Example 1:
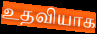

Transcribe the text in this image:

உதவியாக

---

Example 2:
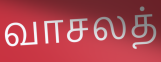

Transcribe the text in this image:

வாசலத்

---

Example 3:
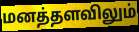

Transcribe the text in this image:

மனத்தளவிலும்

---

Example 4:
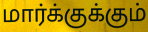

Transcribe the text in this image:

மார்க்குக்கும்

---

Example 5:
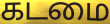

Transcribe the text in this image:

கடமை